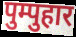
पुम्पुहार